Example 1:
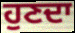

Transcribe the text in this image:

ਹੁਣਦਾ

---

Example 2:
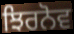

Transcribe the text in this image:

ਝਿਰਨੋਵ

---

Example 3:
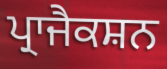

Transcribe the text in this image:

ਪ੍ਰਾਜੈਕਸ਼ਨ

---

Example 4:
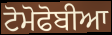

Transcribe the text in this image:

ਟੋਮੋਫੋਬੀਆ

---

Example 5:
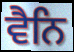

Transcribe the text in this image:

ਵੈਨਿ